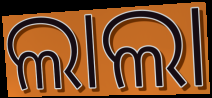
ଲାଲା